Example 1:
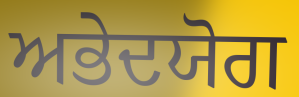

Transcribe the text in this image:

ਅਭੇਦਯੋਗ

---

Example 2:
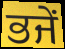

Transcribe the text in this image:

ਭਜੇਂ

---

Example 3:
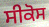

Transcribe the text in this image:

ਸੀਕੋਸ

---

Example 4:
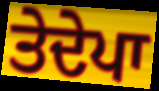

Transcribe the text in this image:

ਤੇਦੇਪਾ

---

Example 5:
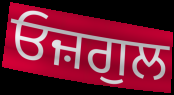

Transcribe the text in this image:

ਓਜ਼ਗੁਲ